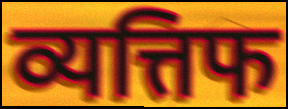
व्यत्तिफ